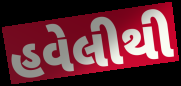
હવેલીથી